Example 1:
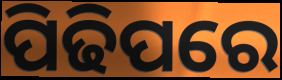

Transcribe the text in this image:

ପିଢିପରେ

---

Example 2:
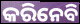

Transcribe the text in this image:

କରିନେବି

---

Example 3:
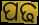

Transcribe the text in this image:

ପଢ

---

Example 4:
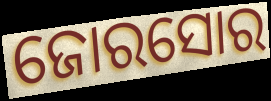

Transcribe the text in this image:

ଜୋରସୋର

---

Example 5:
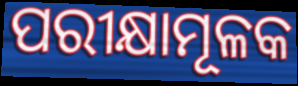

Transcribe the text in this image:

ପରୀକ୍ଷାମୂଳକ